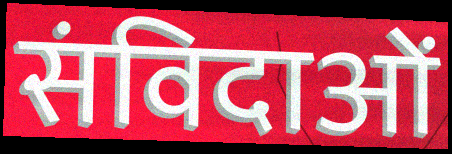
संविदाओं